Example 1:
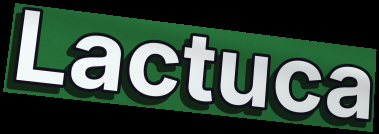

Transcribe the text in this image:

Lactuca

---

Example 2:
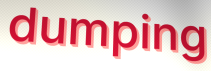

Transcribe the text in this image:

dumping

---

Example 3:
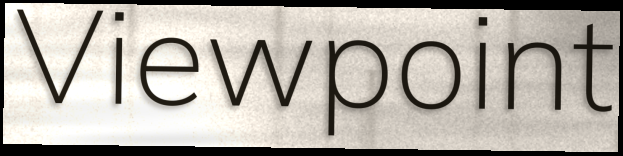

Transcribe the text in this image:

Viewpoint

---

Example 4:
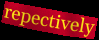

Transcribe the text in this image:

repectively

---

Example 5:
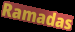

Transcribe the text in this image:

Ramadas